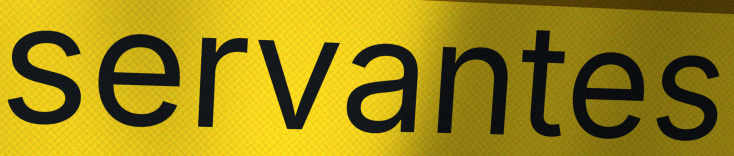
servantes